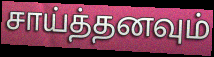
சாய்த்தனவும்